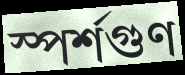
স্পর্শগুণ